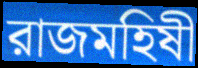
রাজমহিষী